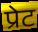
प्रेट